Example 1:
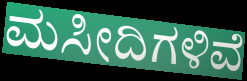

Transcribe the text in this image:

ಮಸೀದಿಗಳಿವೆ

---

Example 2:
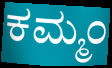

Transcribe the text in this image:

ಕಮ್ಮಂ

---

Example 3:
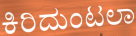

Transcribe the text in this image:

ಕಿರಿದುಂಟಲಾ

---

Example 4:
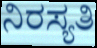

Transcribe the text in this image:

ನಿರಸ್ಯತಿ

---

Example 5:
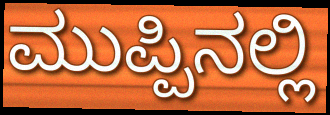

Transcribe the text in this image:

ಮುಪ್ಪಿನಲ್ಲಿ